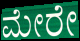
ಮೇರೇ